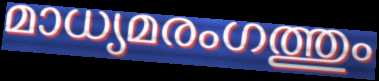
മാധ്യമരംഗത്തും